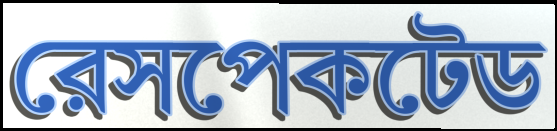
রেসপেকটেড